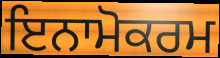
ਇਨਾਮੋਕਰਮ